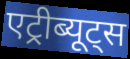
एट्रीब्यूट्स